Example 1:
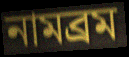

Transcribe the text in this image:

নামব্রম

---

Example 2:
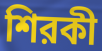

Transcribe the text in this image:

শিরকী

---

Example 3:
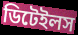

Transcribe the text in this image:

ডিটেইলস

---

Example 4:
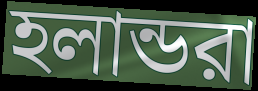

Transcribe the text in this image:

হলান্ডরা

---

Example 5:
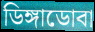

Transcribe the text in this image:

ডিঙ্গাডোবা